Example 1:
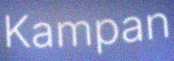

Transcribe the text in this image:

Kampan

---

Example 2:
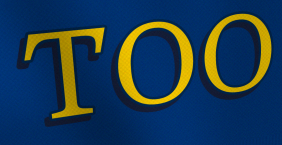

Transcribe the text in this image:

TOO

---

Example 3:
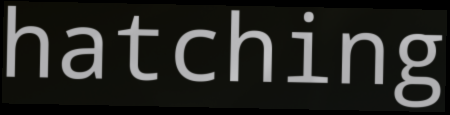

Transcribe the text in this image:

hatching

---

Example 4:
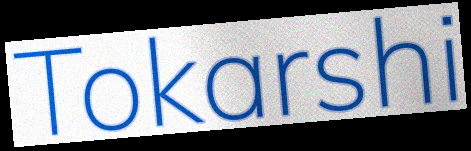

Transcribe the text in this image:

Tokarshi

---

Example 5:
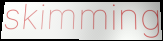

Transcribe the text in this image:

skimming